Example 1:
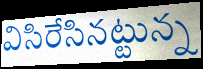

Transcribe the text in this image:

విసిరేసినట్టున్న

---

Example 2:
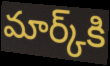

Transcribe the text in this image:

మార్క్‌కి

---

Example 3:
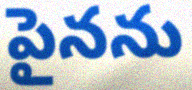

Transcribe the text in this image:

పైనను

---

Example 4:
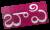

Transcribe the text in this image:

బాపి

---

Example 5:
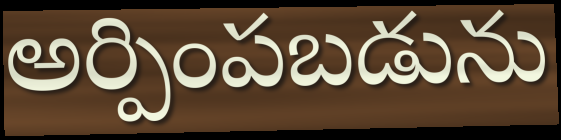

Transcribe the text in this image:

అర్పింపబడును